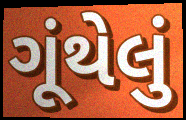
ગૂંથેલું